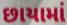
છાયામાં